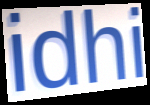
idhi